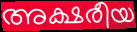
അക്ഷരീയ